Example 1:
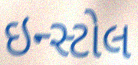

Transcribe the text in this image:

ઇન્સ્ટોલ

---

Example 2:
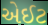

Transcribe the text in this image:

એઈટ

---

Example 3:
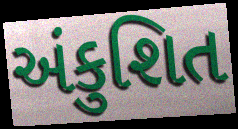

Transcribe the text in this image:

અંકુશિત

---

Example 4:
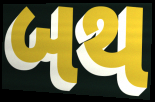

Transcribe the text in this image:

બથ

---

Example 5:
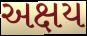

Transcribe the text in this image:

અક્ષય